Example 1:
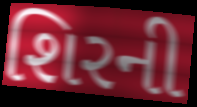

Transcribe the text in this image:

શિરની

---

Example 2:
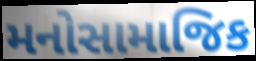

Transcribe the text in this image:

મનોસામાજિક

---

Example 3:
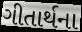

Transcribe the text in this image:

ગીતાર્થના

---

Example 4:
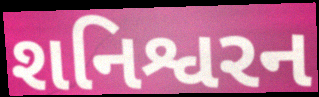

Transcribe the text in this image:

શનિશ્વરન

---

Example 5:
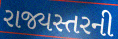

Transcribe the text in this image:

રાજ્યસ્તરની